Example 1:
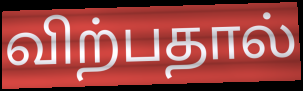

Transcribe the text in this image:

விற்பதால்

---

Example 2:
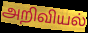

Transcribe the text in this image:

அறிவியல்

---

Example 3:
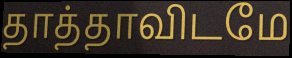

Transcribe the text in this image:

தாத்தாவிடமே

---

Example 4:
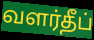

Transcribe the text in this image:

வளர்தீப்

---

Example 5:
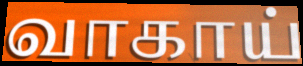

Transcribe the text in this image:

வாகாய்